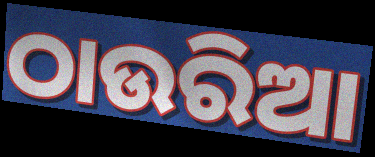
ଠାଉରିଆ